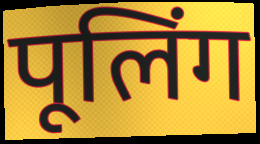
पूलिंग